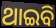
ଥାଇବି